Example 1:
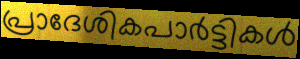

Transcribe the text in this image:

പ്രാദേശികപാർട്ടികൾ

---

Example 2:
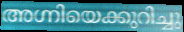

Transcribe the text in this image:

അഗ്നിയെക്കുറിച്ചു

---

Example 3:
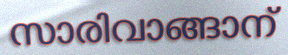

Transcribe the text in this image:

സാരിവാങ്ങാന്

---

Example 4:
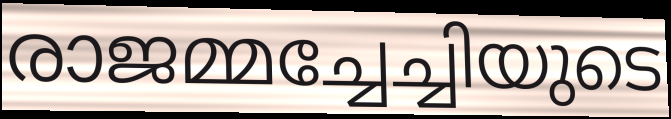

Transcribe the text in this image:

രാജമ്മച്ചേച്ചിയുടെ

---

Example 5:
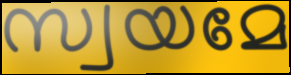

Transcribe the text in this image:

സ്വയമേ